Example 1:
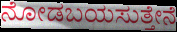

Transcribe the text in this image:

ನೋಡಬಯಸುತ್ತೇನೆ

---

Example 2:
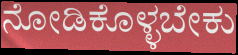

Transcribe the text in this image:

ನೋಡಿಕೊಳ್ಳಬೇಕು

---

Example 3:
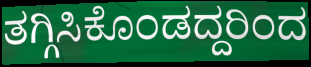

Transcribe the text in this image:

ತಗ್ಗಿಸಿಕೊಂಡದ್ದರಿಂದ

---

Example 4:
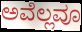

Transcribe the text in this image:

ಅವೆಲ್ಲವೂ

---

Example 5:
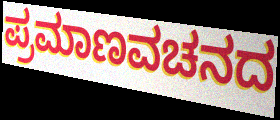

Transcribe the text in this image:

ಪ್ರಮಾಣವಚನದ